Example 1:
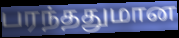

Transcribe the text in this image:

பரந்ததுமான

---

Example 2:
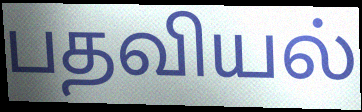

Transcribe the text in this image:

பதவியல்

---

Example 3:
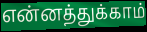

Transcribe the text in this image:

என்னத்துக்காம்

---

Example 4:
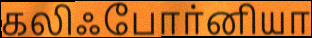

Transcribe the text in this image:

கலிஃபோர்னியா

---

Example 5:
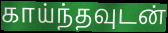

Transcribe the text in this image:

காய்ந்தவுடன்